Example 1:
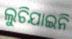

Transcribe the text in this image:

ଲୁଚିଯାଇନି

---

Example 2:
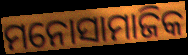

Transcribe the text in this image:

ମନୋସାମାଜିକ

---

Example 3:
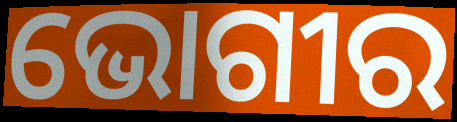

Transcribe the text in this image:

ଭୋଗୀର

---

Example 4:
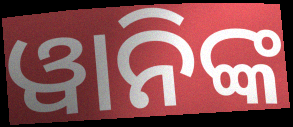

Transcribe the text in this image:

ୱାନିଙ୍କ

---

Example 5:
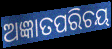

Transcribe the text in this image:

ଅଜ୍ଞାତପରିଚୟ